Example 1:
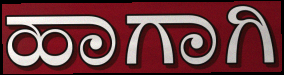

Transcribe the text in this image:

ಹಾಗಾಗಿ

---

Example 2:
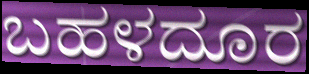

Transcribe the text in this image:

ಬಹಳದೂರ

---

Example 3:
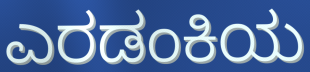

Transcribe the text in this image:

ಎರಡಂಕಿಯ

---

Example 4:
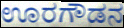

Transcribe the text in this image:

ಊರಗೌಡನ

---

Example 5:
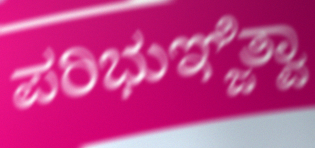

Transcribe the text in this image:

ಪರಿಭುಞ್ಜಿತ್ವಾ